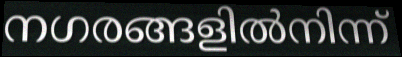
നഗരങ്ങളിൽനിന്ന്